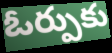
ఓర్పుకు